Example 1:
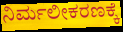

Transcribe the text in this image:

ನಿರ್ಮಲೀಕರಣಕ್ಕೆ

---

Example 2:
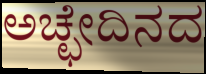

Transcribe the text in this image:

ಅಚ್ಛೇದಿನದ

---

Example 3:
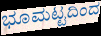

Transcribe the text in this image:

ಭೂಮಟ್ಟದಿಂದ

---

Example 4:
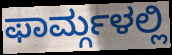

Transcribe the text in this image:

ಫಾರ್ಮ್ಗಳಲ್ಲಿ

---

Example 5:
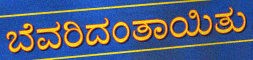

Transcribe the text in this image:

ಬೆವರಿದಂತಾಯಿತು